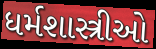
ધર્મશાસ્ત્રીઓ